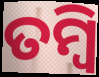
ତମ୍ବି